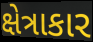
ક્ષેત્રાકાર